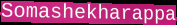
Somashekharappa